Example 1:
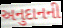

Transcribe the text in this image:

અનુદાનની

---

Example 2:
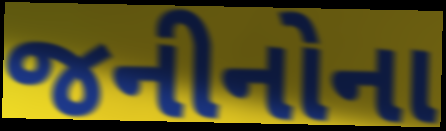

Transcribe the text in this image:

જનીનોના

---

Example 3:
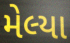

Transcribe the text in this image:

મેલ્યા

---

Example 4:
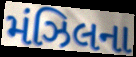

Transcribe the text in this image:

મંઝિલના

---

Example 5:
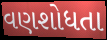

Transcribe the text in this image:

વણશોધતા